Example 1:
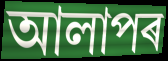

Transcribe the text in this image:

আলাপৰ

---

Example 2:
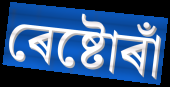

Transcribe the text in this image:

ৰেষ্টোৰাঁ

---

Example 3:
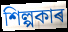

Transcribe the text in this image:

শিল্পকাৰ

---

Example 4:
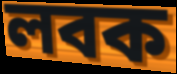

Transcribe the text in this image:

লবক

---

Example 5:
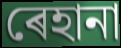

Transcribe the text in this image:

ৰেহানা